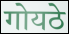
गोयठे